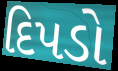
દિપડો